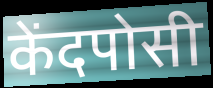
केंदपोसी